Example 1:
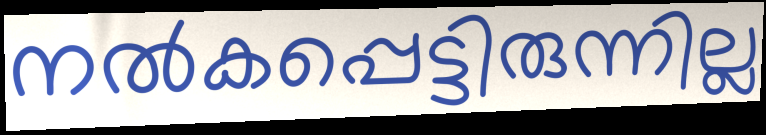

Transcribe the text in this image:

നൽകപ്പെട്ടിരുന്നില്ല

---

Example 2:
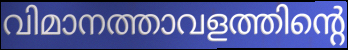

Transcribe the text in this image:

വിമാനത്താവളത്തിന്റെ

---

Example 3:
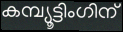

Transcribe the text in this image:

കമ്പ്യൂട്ടിംഗിന്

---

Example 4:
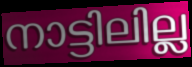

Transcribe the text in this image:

നാട്ടിലില്ല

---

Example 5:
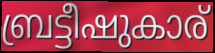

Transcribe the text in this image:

ബ്രട്ടീഷുകാര്